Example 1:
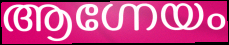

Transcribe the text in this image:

ആഗ്നേയം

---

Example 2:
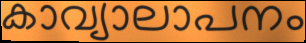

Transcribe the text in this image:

കാവ്യാലാപനം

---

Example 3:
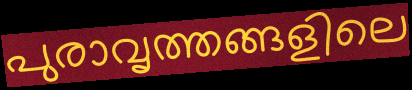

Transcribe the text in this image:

പുരാവൃത്തങ്ങളിലെ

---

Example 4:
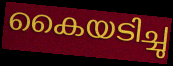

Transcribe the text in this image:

കൈയടിച്ചു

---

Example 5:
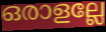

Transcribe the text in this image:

ഒരാളല്ലേ